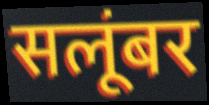
सलूंबर